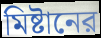
মিষ্টানের